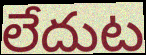
లేదుట